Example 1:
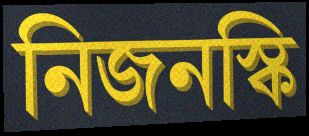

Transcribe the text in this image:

নিজনস্কি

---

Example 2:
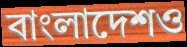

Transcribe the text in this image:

বাংলাদেশও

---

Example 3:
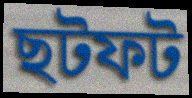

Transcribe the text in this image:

ছটফট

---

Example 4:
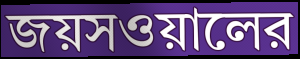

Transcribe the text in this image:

জয়সওয়ালের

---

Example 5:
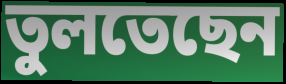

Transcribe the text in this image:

তুলতেছেন